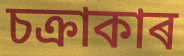
চক্ৰাকাৰ